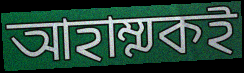
আহাম্মকই